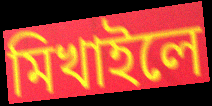
মিখাইলে